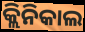
କ୍ଲିନିକାଲ